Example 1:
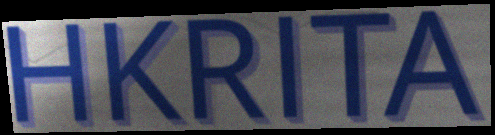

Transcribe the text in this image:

HKRITA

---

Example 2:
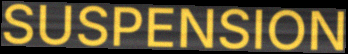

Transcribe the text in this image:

SUSPENSION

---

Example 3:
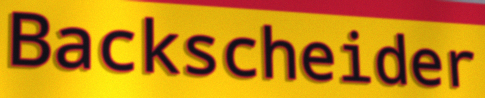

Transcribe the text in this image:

Backscheider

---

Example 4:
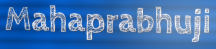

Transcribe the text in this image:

Mahaprabhuji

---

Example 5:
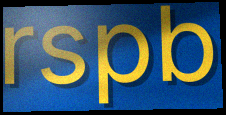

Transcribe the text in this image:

rspb